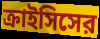
ক্রাইসিসের